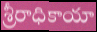
శ్రీరాధికాయా